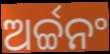
ଅର୍ଚ୍ଚନଂ